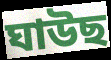
ঘাউছ